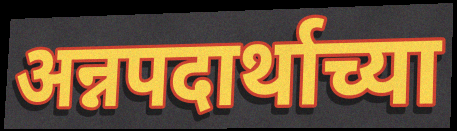
अन्नपदार्थाच्या